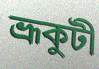
ভ্রূকুটী